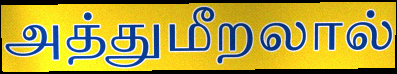
அத்துமீறலால்